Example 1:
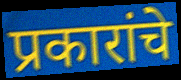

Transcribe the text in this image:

प्रकारांचे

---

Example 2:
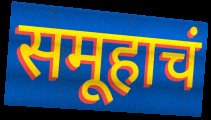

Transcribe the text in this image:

समूहाचं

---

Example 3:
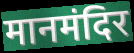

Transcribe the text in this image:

मानमंदिर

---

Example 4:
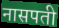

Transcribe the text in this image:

नासपती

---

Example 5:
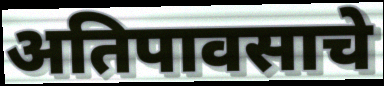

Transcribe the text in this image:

अतिपावसाचे